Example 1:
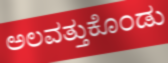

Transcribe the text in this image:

ಅಲವತ್ತುಕೊಂಡು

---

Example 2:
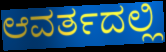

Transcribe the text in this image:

ಆವರ್ತದಲ್ಲಿ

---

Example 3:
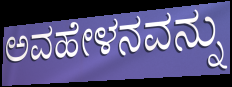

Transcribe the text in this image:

ಅವಹೇಳನವನ್ನು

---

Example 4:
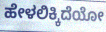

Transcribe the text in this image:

ಹೇಳಲಿಕ್ಕಿದೆಯೋ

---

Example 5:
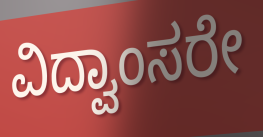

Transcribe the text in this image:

ವಿದ್ವಾಂಸರೇ